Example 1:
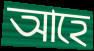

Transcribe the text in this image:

আহে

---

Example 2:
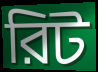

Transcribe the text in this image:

রিট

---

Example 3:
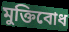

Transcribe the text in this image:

মুক্তিবোধ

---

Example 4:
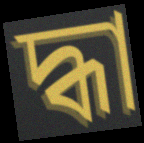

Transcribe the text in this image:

দ্ধা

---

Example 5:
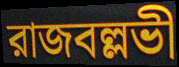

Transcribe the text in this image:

রাজবল্লভী